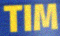
TIM